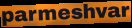
parmeshvar